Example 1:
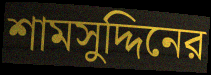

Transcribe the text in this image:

শামসুদ্দিনের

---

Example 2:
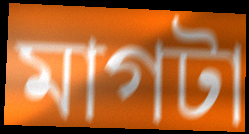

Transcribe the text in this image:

মাগটা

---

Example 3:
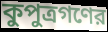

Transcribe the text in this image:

কুপুত্রগণের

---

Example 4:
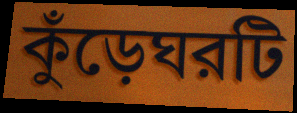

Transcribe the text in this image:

কুঁড়েঘরটি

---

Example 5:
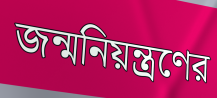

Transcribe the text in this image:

জন্মনিয়ন্ত্রণের